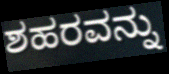
ಶಹರವನ್ನು